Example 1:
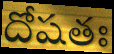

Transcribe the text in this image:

దోషతః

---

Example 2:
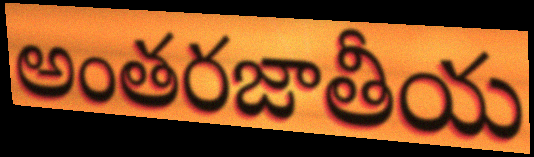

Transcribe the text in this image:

అంతరజాతీయ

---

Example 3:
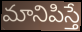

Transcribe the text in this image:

మానిపిస్తే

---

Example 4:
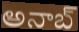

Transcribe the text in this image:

అనాబ్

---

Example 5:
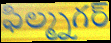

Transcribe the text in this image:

ఫిల్మ్నగర్